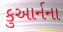
કુઆર્નના